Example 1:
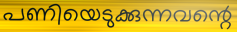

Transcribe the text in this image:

പണിയെടുക്കുന്നവന്റെ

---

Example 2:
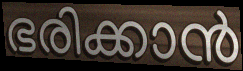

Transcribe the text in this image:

ഭരിക്കാൻ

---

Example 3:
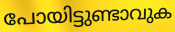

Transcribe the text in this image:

പോയിട്ടുണ്ടാവുക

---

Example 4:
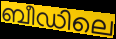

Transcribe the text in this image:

ബീഡിലെ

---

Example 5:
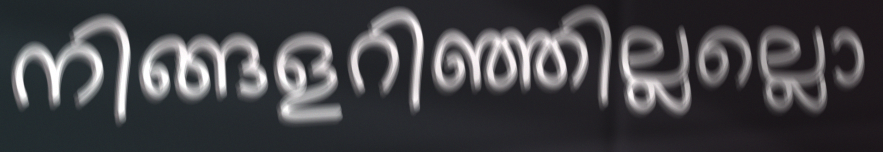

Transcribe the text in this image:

നിങ്ങളറിഞ്ഞില്ലല്ലൊ